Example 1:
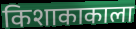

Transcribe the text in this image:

किशाकाकाला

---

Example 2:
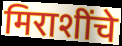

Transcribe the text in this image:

मिराशींचे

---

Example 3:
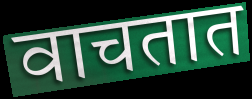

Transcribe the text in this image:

वाचतात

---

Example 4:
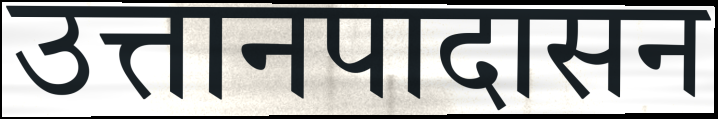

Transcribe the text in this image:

उत्तानपादासन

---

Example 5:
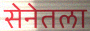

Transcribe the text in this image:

सेनेतला